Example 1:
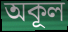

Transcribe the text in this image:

অকূল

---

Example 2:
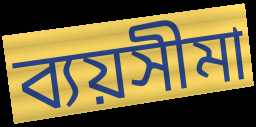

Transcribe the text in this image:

ব্যয়সীমা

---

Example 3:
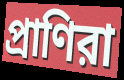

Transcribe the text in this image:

প্রাণিরা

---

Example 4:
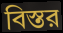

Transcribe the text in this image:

বিস্তর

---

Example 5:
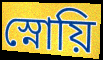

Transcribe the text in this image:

স্নোয়ি